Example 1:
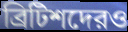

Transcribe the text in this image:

ব্রিটিশদেরও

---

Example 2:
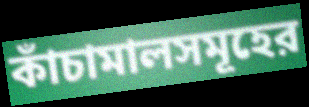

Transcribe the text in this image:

কাঁচামালসমূহের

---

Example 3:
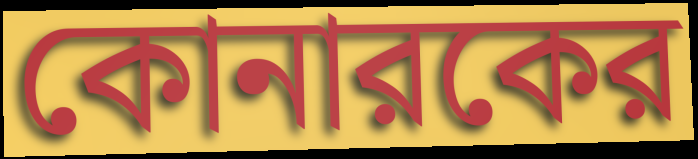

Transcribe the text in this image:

কোনারকের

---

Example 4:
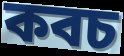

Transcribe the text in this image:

কবচ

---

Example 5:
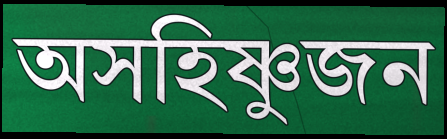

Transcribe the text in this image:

অসহিষ্ণুজন